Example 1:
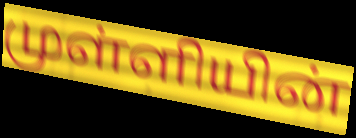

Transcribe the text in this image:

முள்ளியின்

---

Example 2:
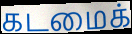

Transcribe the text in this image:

கடமைக்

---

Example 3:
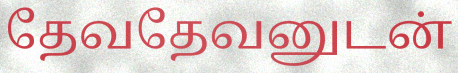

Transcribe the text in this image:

தேவதேவனுடன்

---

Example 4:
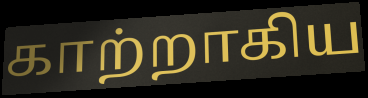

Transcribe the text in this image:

காற்றாகிய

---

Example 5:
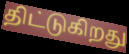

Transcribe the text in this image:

திட்டுகிறது